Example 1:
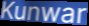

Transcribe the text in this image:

Kunwar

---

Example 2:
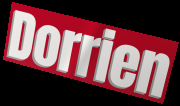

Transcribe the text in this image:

Dorrien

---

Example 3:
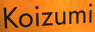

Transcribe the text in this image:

Koizumi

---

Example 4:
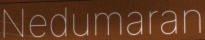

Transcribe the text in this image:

Nedumaran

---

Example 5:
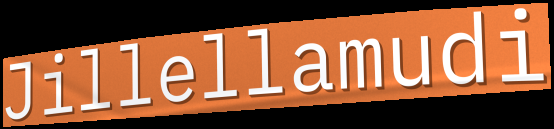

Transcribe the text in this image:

Jillellamudi